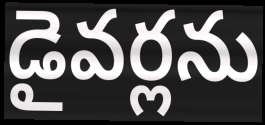
డైవర్లను